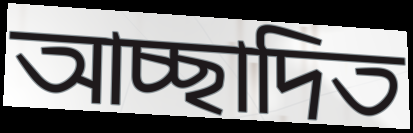
আচ্ছাদিত